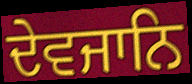
ਦੇਵਜਾਨਿ